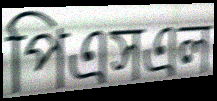
পিএসএল